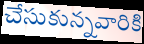
చేసుకున్నవారికి